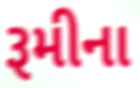
રૂમીના